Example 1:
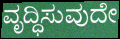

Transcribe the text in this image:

ವೃದ್ಧಿಸುವುದೇ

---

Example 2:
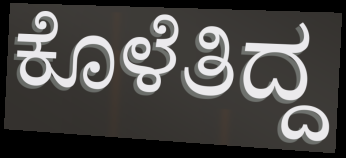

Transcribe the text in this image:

ಕೊಳೆತಿದ್ದ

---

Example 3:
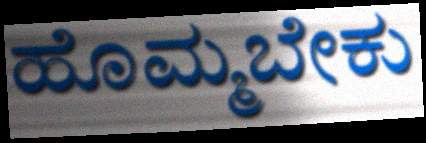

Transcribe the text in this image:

ಹೊಮ್ಮಬೇಕು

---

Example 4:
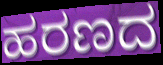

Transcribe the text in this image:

ಹರಣದ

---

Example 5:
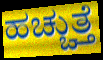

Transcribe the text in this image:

ಹಚ್ಚುತ್ತೆ